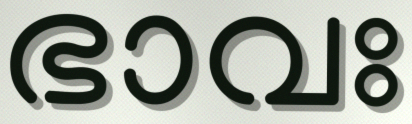
ഭാവഃ